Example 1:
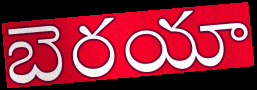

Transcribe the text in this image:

బెరయా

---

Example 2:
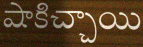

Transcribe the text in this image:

షాకిచ్చాయి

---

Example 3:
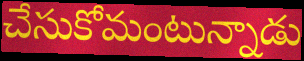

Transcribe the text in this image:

చేసుకోమంటున్నాడు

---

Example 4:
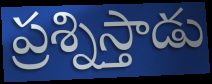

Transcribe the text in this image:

ప్రశ్నిస్తాడు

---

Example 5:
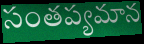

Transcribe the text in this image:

సంతప్యమాన